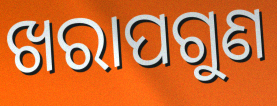
ଖରାପଗୁଣ